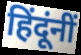
हिंदूंनीं